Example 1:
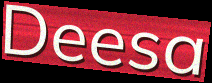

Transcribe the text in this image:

Deesa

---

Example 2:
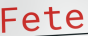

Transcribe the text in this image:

Fete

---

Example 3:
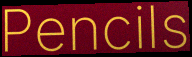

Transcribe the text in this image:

Pencils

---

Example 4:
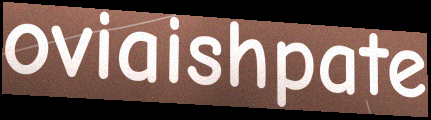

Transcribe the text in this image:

oviaishpate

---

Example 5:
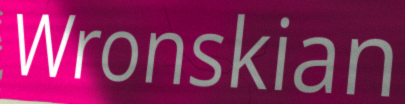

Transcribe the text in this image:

Wronskian